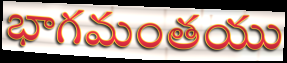
భాగమంతయు